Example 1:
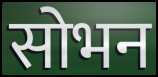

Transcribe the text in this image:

सोभन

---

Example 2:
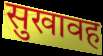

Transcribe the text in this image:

सुखावह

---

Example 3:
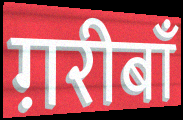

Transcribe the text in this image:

ग़रीबाँ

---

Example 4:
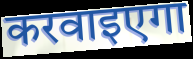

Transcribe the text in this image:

करवाइएगा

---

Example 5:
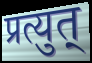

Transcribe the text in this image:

प्रत्युत्